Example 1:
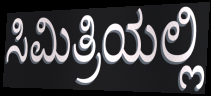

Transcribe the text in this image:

ಸಿಮಿತ್ರಿಯಲ್ಲಿ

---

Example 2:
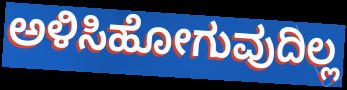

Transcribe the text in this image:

ಅಳಿಸಿಹೋಗುವುದಿಲ್ಲ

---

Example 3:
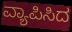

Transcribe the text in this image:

ವ್ಯಾಪಿಸಿದ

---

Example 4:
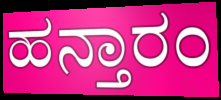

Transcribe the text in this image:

ಹನ್ತಾರಂ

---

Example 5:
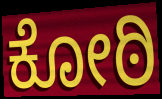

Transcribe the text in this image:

ಕೋಠಿ